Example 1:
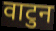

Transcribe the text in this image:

वाटुन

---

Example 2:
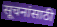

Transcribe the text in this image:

सूचनांसाठी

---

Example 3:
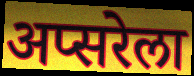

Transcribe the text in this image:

अप्सरेला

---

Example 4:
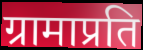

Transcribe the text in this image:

ग्रामाप्रति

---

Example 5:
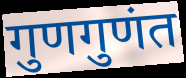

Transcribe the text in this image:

गुणगुणंत